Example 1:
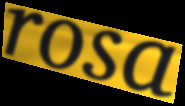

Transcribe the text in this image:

rosa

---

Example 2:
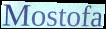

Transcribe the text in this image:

Mostofa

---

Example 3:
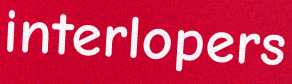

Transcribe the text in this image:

interlopers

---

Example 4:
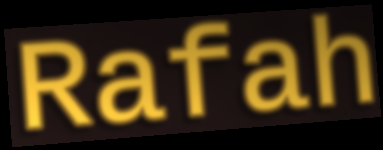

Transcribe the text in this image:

Rafah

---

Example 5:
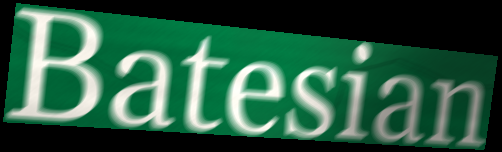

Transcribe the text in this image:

Batesian